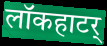
लॉकहाटर्